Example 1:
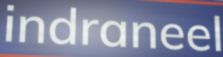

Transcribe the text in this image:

indraneel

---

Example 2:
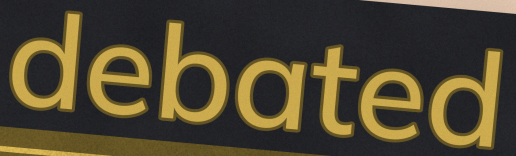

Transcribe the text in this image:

debated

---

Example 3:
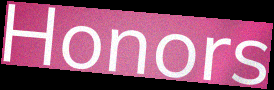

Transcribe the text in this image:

Honors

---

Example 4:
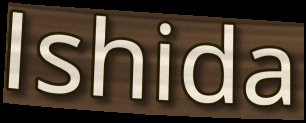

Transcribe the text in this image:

Ishida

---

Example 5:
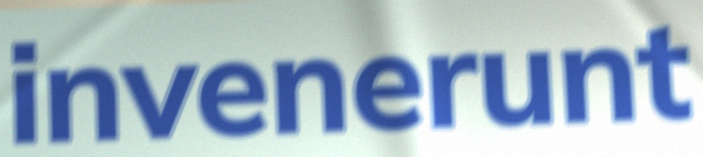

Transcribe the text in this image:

invenerunt